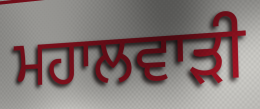
ਮਹਾਲਵਾੜੀ